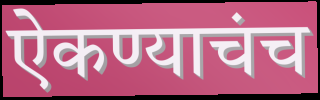
ऐकण्याचंच